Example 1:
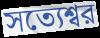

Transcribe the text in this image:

সত্যেশ্বর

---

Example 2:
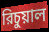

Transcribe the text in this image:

রিচুয়াল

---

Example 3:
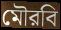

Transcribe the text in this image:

মৌরবি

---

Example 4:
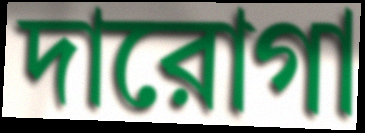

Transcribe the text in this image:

দারোগা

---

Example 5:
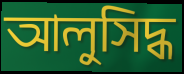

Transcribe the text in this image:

আলুসিদ্ধ